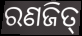
ରଣଜିତ୍